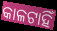
କାଳଟାହିଁ